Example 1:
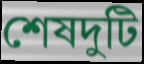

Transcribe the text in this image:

শেষদুটি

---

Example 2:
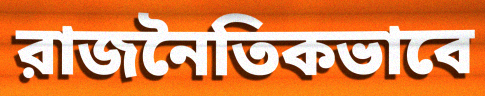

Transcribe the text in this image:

রাজনৈতিকভাবে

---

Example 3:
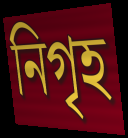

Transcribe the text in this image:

নিগৃহ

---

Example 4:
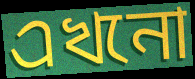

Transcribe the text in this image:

এখনো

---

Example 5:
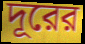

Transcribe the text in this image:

দূরের